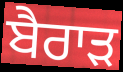
ਬੈਰਾੜ